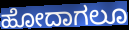
ಹೋದಾಗಲೂ